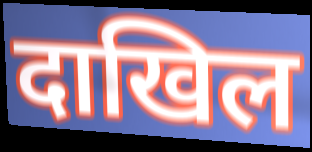
दाखिल